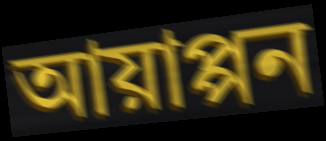
আয়াপ্পন